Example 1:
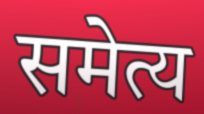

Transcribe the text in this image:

समेत्य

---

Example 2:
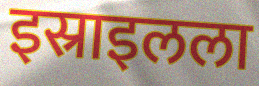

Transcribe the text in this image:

इस्राइलला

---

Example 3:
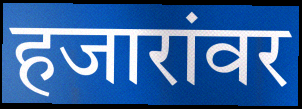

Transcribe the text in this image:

हजारांवर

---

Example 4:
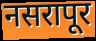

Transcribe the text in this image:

नसरापूर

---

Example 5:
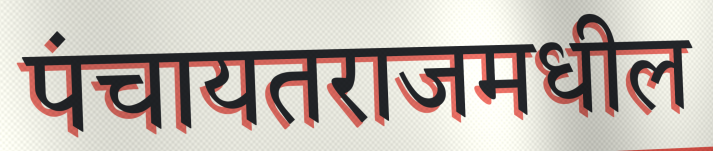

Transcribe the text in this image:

पंचायतराजमधील